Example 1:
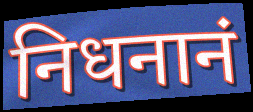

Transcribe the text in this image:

निधनानं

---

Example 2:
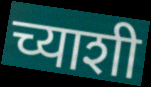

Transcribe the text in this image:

च्याशी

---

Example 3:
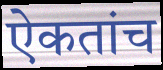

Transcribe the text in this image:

ऐकतांच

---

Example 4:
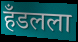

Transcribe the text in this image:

हँडलला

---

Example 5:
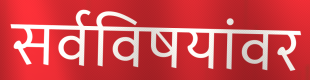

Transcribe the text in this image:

सर्वविषयांवर